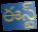
ఈస్ట్